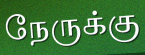
நேருக்கு